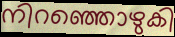
നിറഞ്ഞൊഴുകി